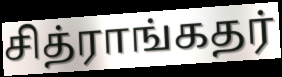
சித்ராங்கதர்